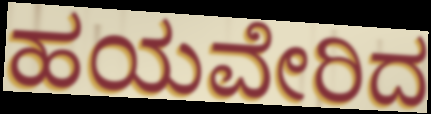
ಹಯವೇರಿದ